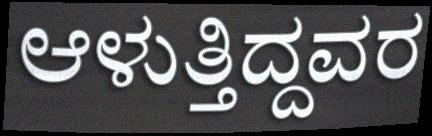
ಆಳುತ್ತಿದ್ದವರ